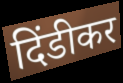
दिंडीकर